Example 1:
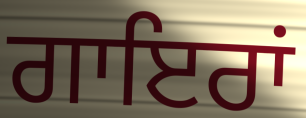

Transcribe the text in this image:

ਗਾਇਰਾਂ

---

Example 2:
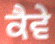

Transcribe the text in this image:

ਕੈਵੇ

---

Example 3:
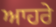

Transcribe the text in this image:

ਆਹਰੇ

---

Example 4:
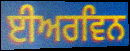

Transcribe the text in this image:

ਈਅਰਵਿਨ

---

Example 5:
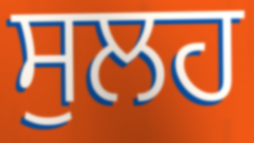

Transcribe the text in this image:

ਸੁਲਹ